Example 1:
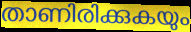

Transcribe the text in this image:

താണിരിക്കുകയും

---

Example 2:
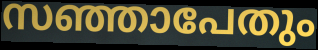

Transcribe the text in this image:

സഞ്ഞാപേതും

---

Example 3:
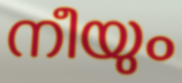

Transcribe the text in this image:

നീയും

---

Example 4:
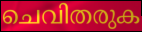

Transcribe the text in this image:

ചെവിതരുക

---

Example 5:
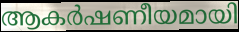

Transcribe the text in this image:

ആകർഷണീയമായി